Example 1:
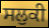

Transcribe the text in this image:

ਸਲੁਕੀ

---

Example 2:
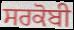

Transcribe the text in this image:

ਸਰਕੋਬੀ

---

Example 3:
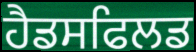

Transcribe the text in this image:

ਹੈਡਸਫਿਲਡ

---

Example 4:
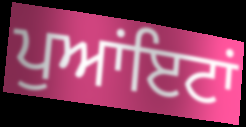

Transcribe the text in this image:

ਪੁਆਂਇਟਾਂ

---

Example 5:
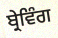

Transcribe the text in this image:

ਬ੍ਰੇਵਿੰਗ